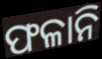
ଫଳାନି